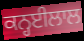
ਕਨ੍ਹਈਲਾਲ